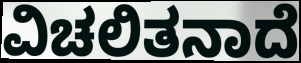
ವಿಚಲಿತನಾದೆ